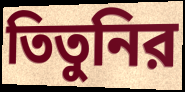
তিতুনির